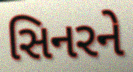
સિનરને